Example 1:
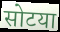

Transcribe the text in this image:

सोटया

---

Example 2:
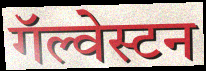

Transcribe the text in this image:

गॅल्वेस्टन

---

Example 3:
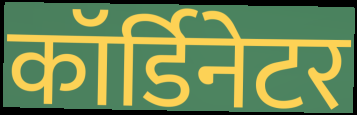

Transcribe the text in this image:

कॉर्डिनेटर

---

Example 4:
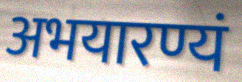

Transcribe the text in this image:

अभयारण्यं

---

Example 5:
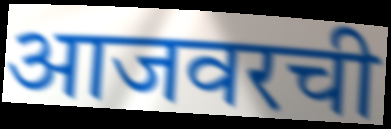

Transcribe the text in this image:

आजवरची